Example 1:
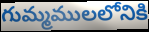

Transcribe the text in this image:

గుమ్మములలోనికి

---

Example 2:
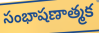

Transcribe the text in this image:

సంభాషణాత్మక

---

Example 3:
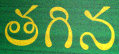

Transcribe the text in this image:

తగిన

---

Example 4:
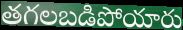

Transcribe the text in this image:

తగలబడిపోయారు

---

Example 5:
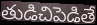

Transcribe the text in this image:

తుడిచిపెడితే